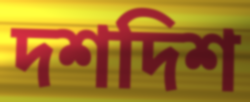
দশদিশ